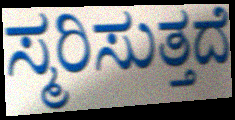
ಸ್ಮರಿಸುತ್ತದೆ